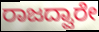
ರಾಜದ್ವಾರೇ